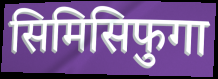
सिमिसिफुगा